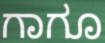
ಗಾಗೂ